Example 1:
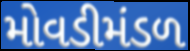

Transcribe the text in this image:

મોવડીમંડળ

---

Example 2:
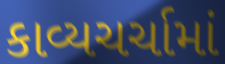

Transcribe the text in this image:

કાવ્યચર્ચામાં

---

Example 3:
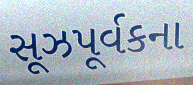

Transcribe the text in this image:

સૂઝપૂર્વકના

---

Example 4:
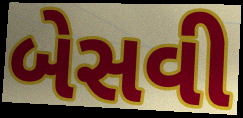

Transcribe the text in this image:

બેસવી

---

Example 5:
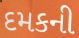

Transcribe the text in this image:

દમકની